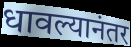
धावल्यानंतर